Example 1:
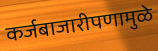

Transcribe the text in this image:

कर्जबाजारीपणामुळे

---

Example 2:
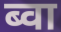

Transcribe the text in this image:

ब्वा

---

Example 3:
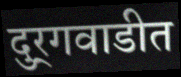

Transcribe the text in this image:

दुर्गवाडीत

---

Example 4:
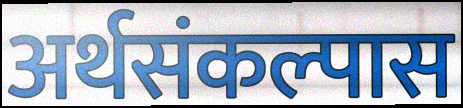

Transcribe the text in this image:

अर्थसंकल्पास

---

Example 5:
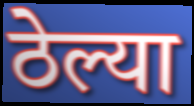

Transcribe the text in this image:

ठेल्या